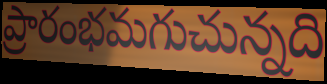
ప్రారంభమగుచున్నది